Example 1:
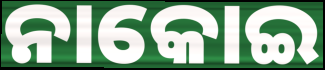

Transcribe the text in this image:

ନାକୋଇ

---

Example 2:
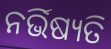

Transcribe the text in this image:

ନର୍ଭିଷ୍ୟତି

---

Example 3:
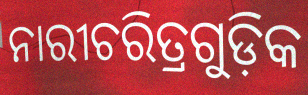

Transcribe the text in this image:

ନାରୀଚରିତ୍ରଗୁଡ଼ିକ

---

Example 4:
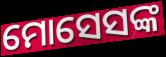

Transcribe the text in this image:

ମୋସେସଙ୍କ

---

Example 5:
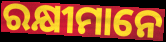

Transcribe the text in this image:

ରକ୍ଷୀମାନେ